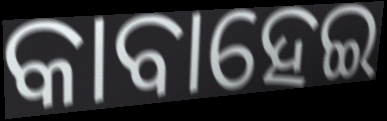
କାବାହେଇ